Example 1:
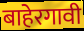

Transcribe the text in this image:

बाहेरगावी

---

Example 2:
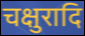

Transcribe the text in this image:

चक्षुरादि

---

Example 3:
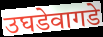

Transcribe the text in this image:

उघडेवागडे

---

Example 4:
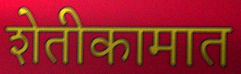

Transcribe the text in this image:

शेतीकामात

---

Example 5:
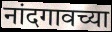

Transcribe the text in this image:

नांदगावच्या